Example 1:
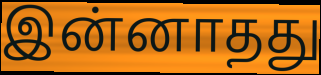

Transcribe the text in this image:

இன்னாதது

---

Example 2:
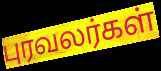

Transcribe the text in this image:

புரவலர்கள்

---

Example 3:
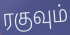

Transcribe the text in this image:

ரகுவும்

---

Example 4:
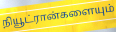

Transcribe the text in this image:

நியூட்ரான்களையும்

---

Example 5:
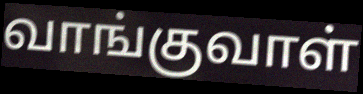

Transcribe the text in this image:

வாங்குவாள்